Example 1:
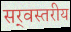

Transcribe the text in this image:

सर्वस्तरीय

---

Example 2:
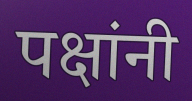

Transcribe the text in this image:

पक्षांनी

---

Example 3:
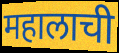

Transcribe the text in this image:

महालाची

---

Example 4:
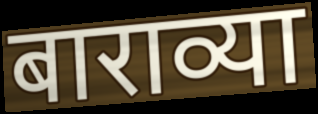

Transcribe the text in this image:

बाराव्या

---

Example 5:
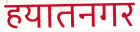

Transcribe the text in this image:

हयातनगर